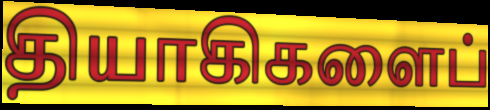
தியாகிகளைப்